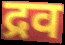
द्रव